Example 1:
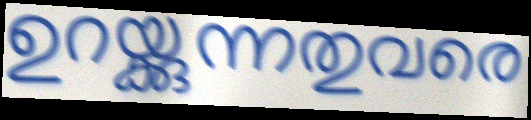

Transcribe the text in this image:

ഉറയ്ക്കുന്നതുവരെ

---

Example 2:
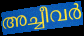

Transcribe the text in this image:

അച്ചീവർ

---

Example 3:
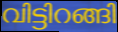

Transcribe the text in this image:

വിട്ടിറങ്ങി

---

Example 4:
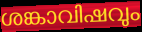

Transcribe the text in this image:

ശങ്കാവിഷവും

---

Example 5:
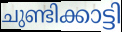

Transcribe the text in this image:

ചുണ്ടിക്കാട്ടി